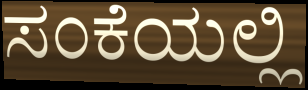
ಸಂಕೆಯಲ್ಲಿ